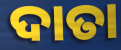
ଦାତା